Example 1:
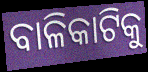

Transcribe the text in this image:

ବାଳିକାଟିକୁ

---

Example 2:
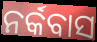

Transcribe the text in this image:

ନର୍କବାସ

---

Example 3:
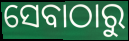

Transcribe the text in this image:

ସେବାଠାରୁ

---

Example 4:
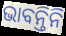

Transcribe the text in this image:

ଭାବନ୍ତିନି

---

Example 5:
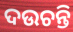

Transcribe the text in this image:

ଦଉଚନ୍ତି